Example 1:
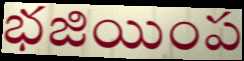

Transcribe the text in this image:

భజియింప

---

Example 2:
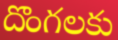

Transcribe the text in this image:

దొంగలకు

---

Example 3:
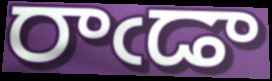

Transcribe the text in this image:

రాఁడా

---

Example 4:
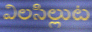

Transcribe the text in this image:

విలసిల్లుట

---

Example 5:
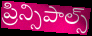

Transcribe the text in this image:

ప్రిన్సిపాల్స్